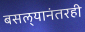
बसल्यानंतरही